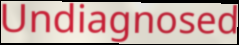
Undiagnosed